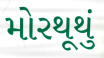
મોરથૂથું